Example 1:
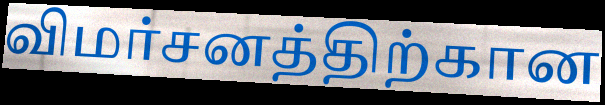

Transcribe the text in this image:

விமர்சனத்திற்கான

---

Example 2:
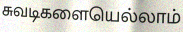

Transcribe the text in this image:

சுவடிகளையெல்லாம்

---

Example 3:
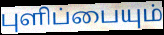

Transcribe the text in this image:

புளிப்பையும்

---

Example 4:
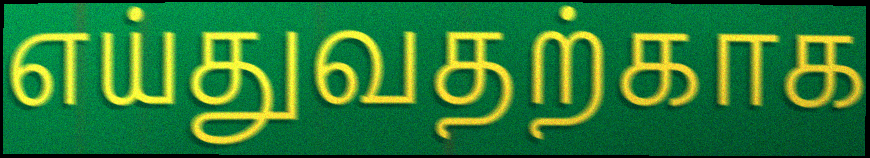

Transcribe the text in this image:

எய்துவதற்காக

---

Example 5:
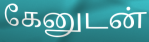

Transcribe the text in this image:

கேனுடன்